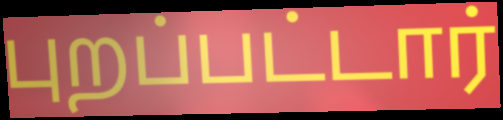
புறப்பட்டார்